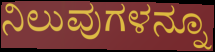
ನಿಲುವುಗಳನ್ನೂ